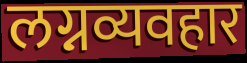
लग्नव्यवहार